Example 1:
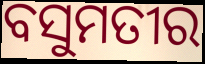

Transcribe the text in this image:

ବସୁମତୀର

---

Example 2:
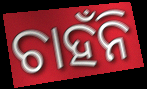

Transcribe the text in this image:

ଚାହଁନି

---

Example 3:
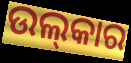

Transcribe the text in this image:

ଉଲ୍‌କାର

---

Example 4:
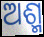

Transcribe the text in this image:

ଅଶ୍ମ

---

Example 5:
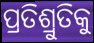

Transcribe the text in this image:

ପ୍ରତିଶ୍ରୁତିକୁ